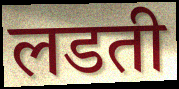
लडती